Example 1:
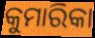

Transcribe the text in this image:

କୁମାରିକା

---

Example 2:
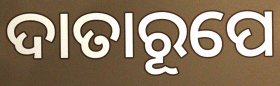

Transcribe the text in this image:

ଦାତାରୂପେ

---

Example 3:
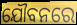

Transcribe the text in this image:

ଯୌବନରେ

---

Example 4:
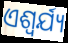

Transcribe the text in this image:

ଏଶ୍ଵର୍ଯ୍ୟ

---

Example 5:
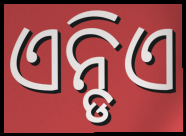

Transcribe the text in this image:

ଏନ୍ଡିଏ